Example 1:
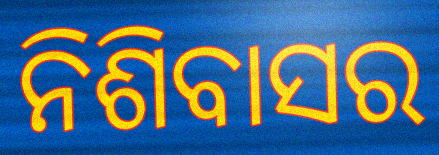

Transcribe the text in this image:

ନିଶିବାସର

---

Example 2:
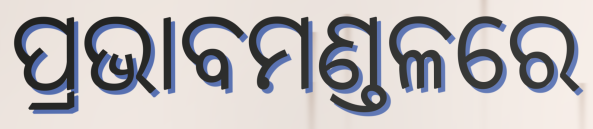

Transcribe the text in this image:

ପ୍ରଭାବମଣ୍ଡଳରେ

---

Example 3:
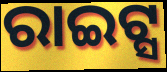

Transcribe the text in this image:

ରାଇଟ୍ସ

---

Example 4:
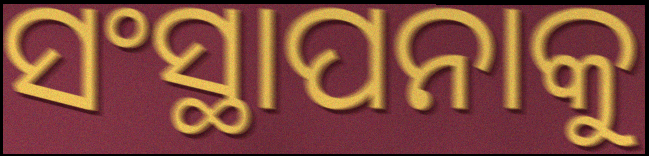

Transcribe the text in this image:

ସଂସ୍ଥାପନାକୁ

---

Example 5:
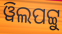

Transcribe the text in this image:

ୱିଲପଟ୍ଟୁ